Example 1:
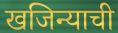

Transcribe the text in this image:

खजिन्याची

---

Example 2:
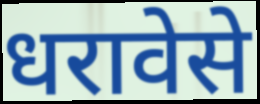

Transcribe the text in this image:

धरावेसे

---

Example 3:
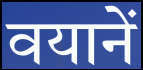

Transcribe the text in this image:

वयानें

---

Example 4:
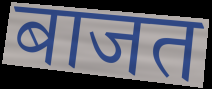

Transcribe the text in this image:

बाजत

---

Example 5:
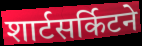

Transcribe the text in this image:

शार्टसर्किटने